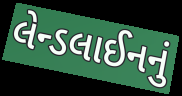
લેન્ડલાઈનનું